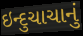
ઇન્દુચાચાનું